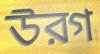
উরগ